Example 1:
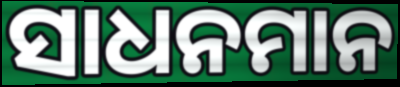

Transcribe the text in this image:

ସାଧନମାନ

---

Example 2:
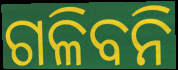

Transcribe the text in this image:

ଗଳିବନି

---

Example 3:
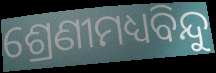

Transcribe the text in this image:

ଶ୍ରେଣୀମଧ୍ୟବିନ୍ଦୁ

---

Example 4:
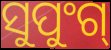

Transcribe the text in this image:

ସୁପୁଂଗ୍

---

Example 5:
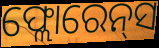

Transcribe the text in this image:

ଫ୍ଲୋରେନ୍‌ସ